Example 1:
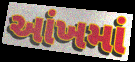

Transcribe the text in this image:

આંખમાં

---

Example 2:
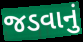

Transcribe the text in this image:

જડવાનું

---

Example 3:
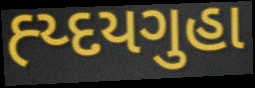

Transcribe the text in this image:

હ્ય્દયગુહા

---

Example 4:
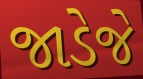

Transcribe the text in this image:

જાડેજે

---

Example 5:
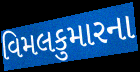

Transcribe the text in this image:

વિમલકુમારના